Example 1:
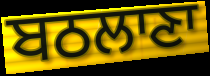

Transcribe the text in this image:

ਬਠਲਾਣਾ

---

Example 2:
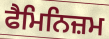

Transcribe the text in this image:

ਫੈਮਿਨਿਜ਼ਮ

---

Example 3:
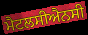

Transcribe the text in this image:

ਮੈਟਲਸੀਐਨਸੀ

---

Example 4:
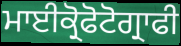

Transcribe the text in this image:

ਮਾਈਕ੍ਰੋਫੋਟੋਗ੍ਰਾਫੀ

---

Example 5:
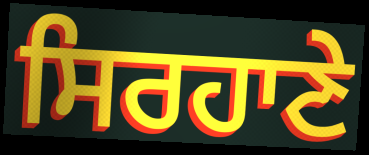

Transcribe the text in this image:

ਸਿਰਹਾਣੇ